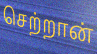
செற்றான்